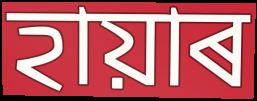
হায়াৰ